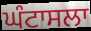
ਘੰਟਾਸਲਾ